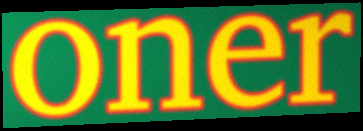
oner